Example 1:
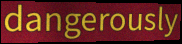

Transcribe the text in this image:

dangerously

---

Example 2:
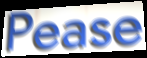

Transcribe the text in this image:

Pease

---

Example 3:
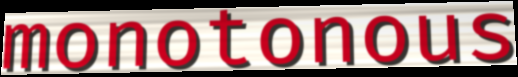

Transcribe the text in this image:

monotonous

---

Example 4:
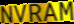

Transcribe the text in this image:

NVRAM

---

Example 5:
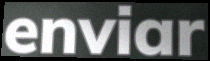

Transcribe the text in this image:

enviar